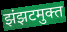
झंझटमुक्त